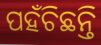
ପହଁଚିଛନ୍ତି